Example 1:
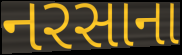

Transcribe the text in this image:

નરસાના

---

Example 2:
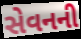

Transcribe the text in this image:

સેવનની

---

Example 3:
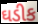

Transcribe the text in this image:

ઘડીક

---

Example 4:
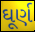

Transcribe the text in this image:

ઘૂર્ણ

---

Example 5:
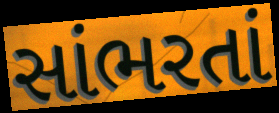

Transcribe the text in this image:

સાંભરતાં